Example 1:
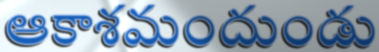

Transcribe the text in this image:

ఆకాశమందుండు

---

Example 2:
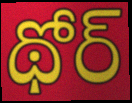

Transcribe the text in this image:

థోర్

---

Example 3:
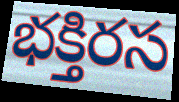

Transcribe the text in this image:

భక్తిరస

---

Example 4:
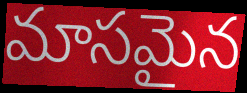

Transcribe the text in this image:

మాసమైన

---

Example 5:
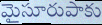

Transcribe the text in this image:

మైసూరుపాకు